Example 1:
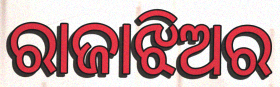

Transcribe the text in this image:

ରାଜାଝିଅର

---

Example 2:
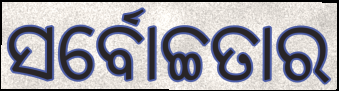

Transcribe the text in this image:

ସର୍ବୋଚ୍ଚତାର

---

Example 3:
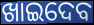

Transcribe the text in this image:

ଖାଇଦେବ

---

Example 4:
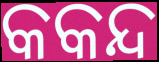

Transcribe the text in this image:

କକନ୍ଦ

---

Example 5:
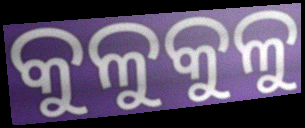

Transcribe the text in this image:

କୁଳୁକୁଳୁ